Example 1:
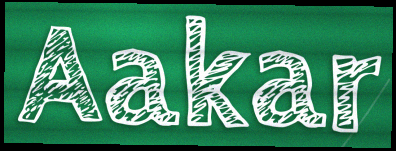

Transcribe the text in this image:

Aakar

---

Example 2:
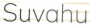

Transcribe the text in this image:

Suvahu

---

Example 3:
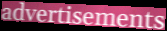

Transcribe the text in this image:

advertisements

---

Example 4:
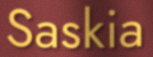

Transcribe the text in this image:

Saskia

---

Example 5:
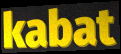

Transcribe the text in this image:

kabat